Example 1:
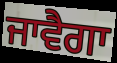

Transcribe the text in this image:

ਜਾਵੈਗਾ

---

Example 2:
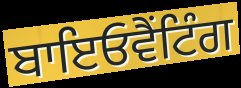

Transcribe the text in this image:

ਬਾਇਓਵੈਂਟਿੰਗ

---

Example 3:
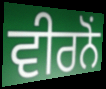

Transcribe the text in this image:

ਵੀਰਨੋਂ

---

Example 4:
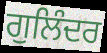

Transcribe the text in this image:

ਗੁਲਿੰਦਰ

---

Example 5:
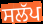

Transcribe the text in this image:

ਸਲੱਪ